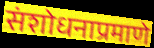
संशोधनाप्रमाणे